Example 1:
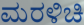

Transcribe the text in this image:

ಮರಳಿಚಿ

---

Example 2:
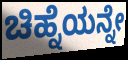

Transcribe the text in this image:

ಚಿಹ್ನೆಯನ್ನೇ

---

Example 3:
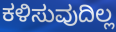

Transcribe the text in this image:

ಕಳಿಸುವುದಿಲ್ಲ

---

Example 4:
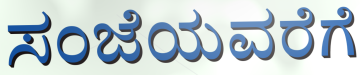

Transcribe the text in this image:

ಸಂಜೆಯವರೆಗೆ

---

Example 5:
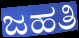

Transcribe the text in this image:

ಜಹತಿ